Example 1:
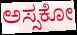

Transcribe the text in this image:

ಅಸ್ಸಕೋ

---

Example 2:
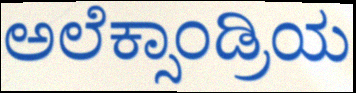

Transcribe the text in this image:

ಅಲೆಕ್ಸಾಂಡ್ರಿಯ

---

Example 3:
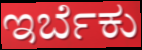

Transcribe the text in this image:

ಇರ್ಬೆಕು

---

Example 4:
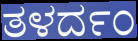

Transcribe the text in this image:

ತಳರ್ದಂ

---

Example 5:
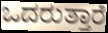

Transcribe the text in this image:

ಒದರುತ್ತಾರೆ